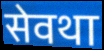
सेवथा